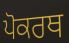
ਪੋਕਰਥ